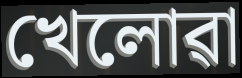
খেলোৱা